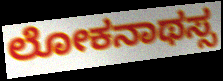
ಲೋಕನಾಥಸ್ಸ